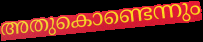
അതുകൊണ്ടെന്നും